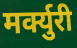
मर्क्युरी